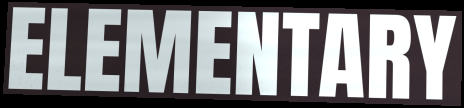
ELEMENTARY